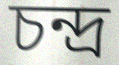
চন্দ্ৰ